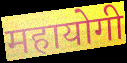
महायोगी